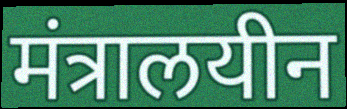
मंत्रालयीन